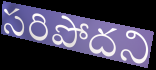
సరిపోదని